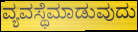
ವ್ಯವಸ್ಥೆಮಾಡುವುದು